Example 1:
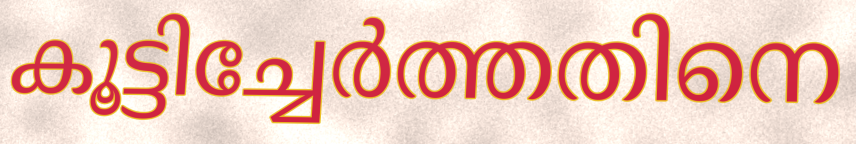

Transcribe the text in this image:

കൂട്ടിച്ചേർത്തതിനെ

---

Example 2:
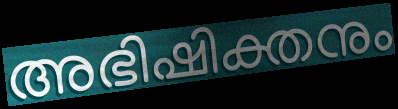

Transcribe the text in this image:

അഭിഷിക്തനും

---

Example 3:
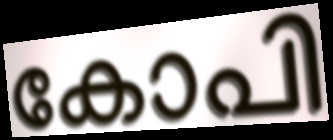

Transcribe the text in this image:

കോപി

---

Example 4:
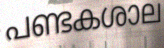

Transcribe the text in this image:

പണ്ടകശാല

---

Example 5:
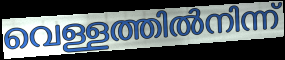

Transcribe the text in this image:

വെള്ളത്തിൽനിന്ന്